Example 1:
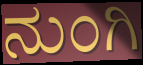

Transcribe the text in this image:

ನುಂಗಿ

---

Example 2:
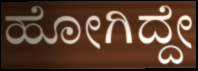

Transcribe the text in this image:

ಹೋಗಿದ್ದೇ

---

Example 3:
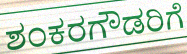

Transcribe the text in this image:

ಶಂಕರಗೌಡರಿಗೆ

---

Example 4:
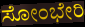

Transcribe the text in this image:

ಸೋಂಭೇರಿ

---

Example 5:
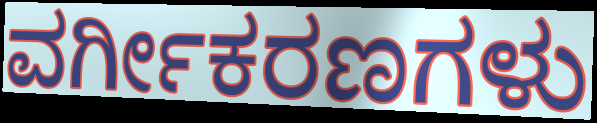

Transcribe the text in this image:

ವರ್ಗೀಕರಣಗಳು